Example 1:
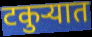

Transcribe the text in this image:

टकुर्‍यात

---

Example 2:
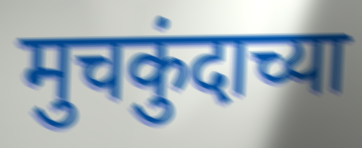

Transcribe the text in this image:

मुचकुंदाच्या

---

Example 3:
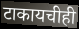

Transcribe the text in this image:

टाकायचीही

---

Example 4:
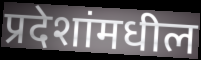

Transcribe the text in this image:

प्रदेशांमधील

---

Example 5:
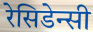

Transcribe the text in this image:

रेसिडेन्सी